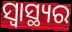
ସ୍ବାସ୍ଥ୍ୟର